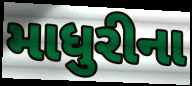
માધુરીના